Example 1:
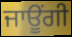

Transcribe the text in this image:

ਜਾਊਂਗੀ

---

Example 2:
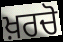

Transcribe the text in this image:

ਖ਼ਰਚੋ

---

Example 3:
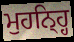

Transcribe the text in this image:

ਮੁਹਨ੍ਹ੍ਹਿ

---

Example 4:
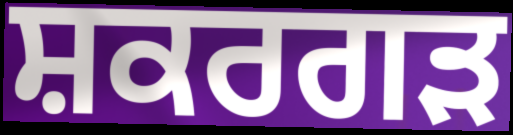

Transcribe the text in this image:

ਸ਼ਕਰਗੜ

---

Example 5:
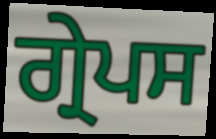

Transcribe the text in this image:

ਗ੍ਰੇਪਸ